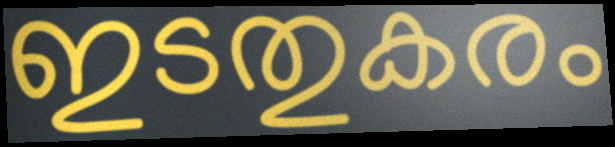
ഇടതുകരം